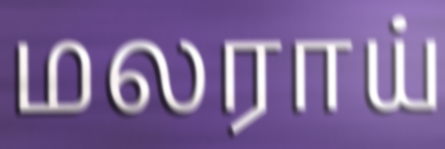
மலராய்